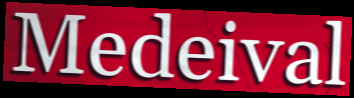
Medeival